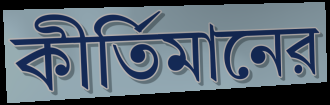
কীর্তিমানের